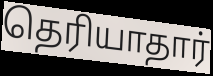
தெரியாதார்